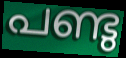
പണ്ടു